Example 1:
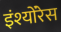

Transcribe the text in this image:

इंश्योंरेस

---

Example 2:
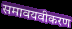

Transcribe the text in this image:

समावयवीकरण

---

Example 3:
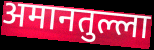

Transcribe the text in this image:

अमानतुल्ला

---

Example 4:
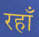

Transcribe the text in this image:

रहाँ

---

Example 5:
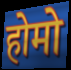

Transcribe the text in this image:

होमो